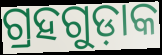
ଗ୍ରହଗୁଡ଼ାକ